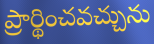
ప్రార్థించవచ్చును